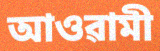
আওৱামী